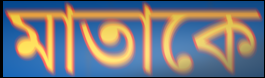
মাতাকে